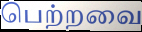
பெற்றவை